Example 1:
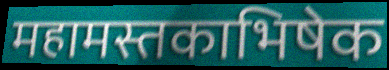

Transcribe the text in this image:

महामस्तकाभिषेक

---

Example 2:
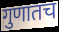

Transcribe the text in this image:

गुणातच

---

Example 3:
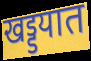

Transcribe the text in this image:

खड्डयात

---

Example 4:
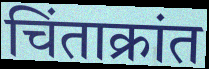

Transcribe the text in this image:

चिंताक्रांत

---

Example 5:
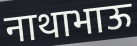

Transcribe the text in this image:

नाथाभाऊ